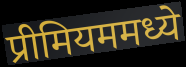
प्रीमियममध्ये